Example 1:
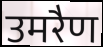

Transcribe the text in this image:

उमरैण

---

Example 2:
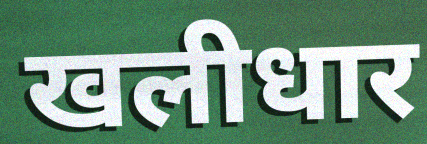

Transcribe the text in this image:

खलीधार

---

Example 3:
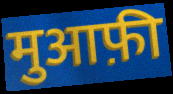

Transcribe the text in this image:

मुआफ़ी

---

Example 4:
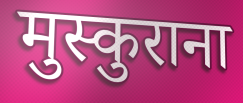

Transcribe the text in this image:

मुस्कुराना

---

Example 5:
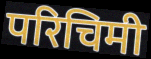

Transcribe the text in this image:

परिचिमी